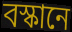
বস্কানে